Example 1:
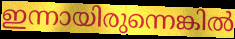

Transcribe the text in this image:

ഇന്നായിരുന്നെങ്കിൽ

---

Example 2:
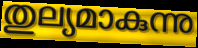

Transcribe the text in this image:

തുല്യമാകുന്നു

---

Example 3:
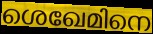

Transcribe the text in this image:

ശെഖേമിനെ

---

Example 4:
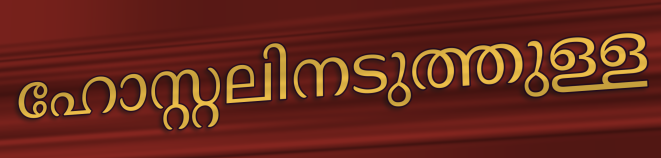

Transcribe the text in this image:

ഹോസ്റ്റലിനടുത്തുള്ള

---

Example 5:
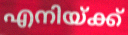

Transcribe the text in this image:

എനിയ്ക്ക്